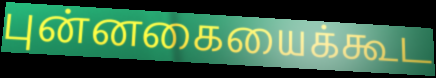
புன்னகையைக்கூட